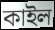
কাইল